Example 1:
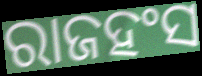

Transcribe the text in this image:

ରାଜହଂସ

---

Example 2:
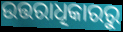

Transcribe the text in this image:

ଉତ୍ତରାଧିକାରରୁ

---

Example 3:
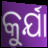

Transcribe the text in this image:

କୁର୍ଯା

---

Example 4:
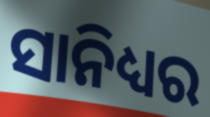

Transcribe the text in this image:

ସାନିଧ୍ୟର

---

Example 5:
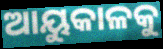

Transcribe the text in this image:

ଆୟୁକାଳକୁ